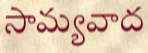
సామ్యవాద